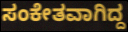
ಸಂಕೇತವಾಗಿದ್ದ